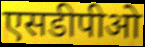
एसडीपीओ